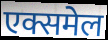
एक्समेल